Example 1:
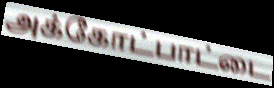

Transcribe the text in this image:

அக்கோட்பாட்டை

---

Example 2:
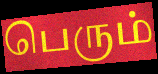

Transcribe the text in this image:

பெரும்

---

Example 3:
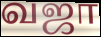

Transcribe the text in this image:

வஜா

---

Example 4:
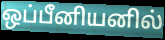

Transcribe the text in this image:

ஒப்பீனியனில்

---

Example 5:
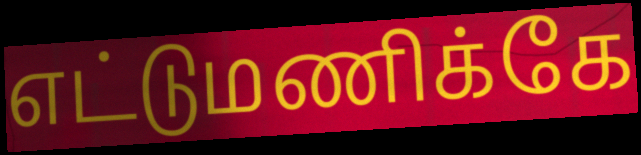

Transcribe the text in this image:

எட்டுமணிக்கே